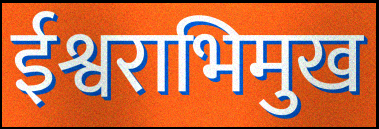
ईश्वराभिमुख